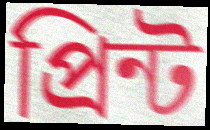
প্রিন্ট